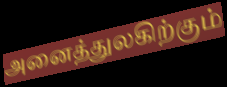
அனைத்துலகிற்கும்